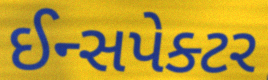
ઈન્સપેક્ટર